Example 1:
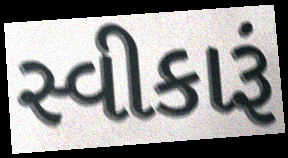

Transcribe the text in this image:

સ્વીકારૂં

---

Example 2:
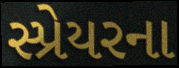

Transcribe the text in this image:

સ્પ્રેયરના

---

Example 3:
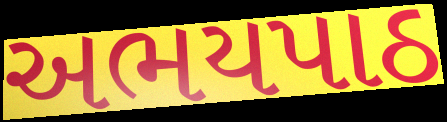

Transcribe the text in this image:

અભયપાઠ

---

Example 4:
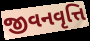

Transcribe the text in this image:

જીવનવૃત્તિ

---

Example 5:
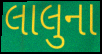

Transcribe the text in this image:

લાલુના